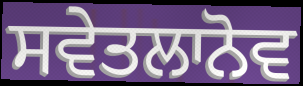
ਸਵੇਤਲਾਨੋਵ